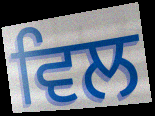
ਵਿਲ